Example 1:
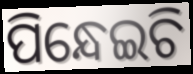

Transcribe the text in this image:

ପିନ୍ଧେଇଚି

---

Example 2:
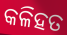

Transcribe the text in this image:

କଳିହତ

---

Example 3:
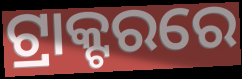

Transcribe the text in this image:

ଟ୍ରାକ୍ଟରରେ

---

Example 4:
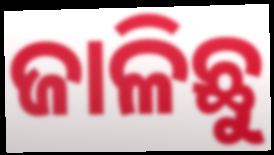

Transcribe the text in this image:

ଜାଳିଛୁ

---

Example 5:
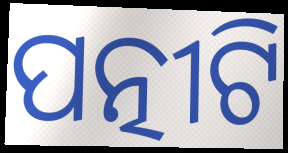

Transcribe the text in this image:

ପତ୍ନୀଟି